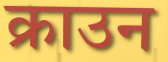
क्राउन